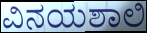
ವಿನಯಶಾಲಿ